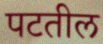
पटतील